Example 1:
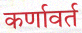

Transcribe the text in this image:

कर्णावर्त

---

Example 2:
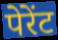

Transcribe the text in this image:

पेरेंट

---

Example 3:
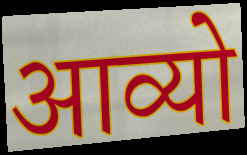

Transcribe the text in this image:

आव्यो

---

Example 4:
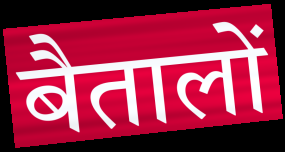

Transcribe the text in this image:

बैतालों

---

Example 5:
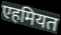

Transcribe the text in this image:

एहमियत